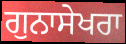
ਗੁਨਾਸੇਖਰਾ